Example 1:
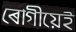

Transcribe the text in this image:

ৰোগীয়েই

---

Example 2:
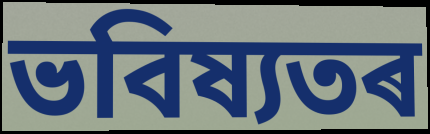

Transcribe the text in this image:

ভবিষ্যতৰ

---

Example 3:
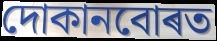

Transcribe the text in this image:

দোকানবোৰত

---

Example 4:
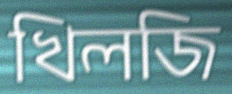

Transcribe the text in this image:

খিলজি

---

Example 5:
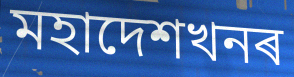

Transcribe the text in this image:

মহাদেশখনৰ